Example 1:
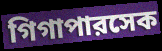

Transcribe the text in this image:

গিগাপারসেক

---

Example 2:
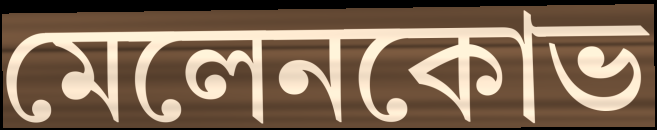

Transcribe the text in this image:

মেলেনকোভ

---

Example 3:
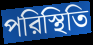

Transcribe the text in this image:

পরিস্থিতি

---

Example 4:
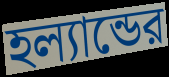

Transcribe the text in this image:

হল্যান্ডের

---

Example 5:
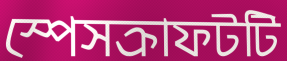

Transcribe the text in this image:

স্পেসক্রাফটটি